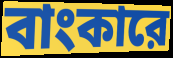
বাংকারে